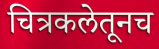
चित्रकलेतूनच